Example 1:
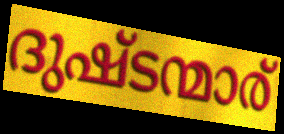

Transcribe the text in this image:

ദുഷ്ടന്മാര്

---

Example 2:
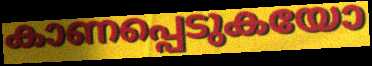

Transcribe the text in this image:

കാണപ്പെടുകയോ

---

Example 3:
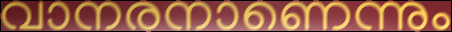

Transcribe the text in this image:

വാനരനാണെന്നും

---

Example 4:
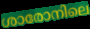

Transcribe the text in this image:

ശാരോനിലെ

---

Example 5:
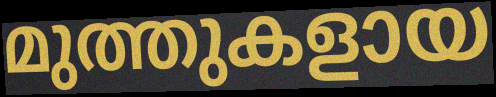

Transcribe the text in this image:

മുത്തുകളായ